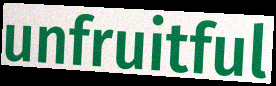
unfruitful